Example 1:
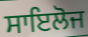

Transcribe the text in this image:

ਸਾਇਲੋਜ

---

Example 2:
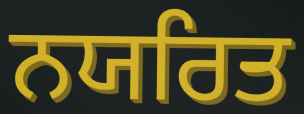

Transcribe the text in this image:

ਨਯਰਿਤ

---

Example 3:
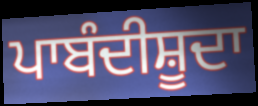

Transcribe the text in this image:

ਪਾਬੰਦੀਸ਼ੂਦਾ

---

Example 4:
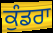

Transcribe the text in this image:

ਕੁੰਡਰਾ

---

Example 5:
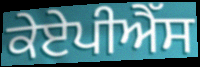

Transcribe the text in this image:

ਕੇਏਪੀਐੱਸ